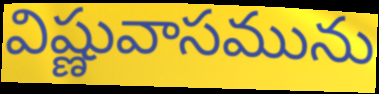
విష్ణువాసమును